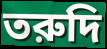
তরুদি